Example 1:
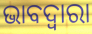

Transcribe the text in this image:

ଭାବଦ୍ଵାରା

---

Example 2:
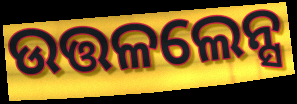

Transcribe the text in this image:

ଉତ୍ତଳଲେନ୍ସ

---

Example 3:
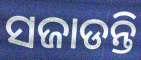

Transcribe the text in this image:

ସଜାଡନ୍ତି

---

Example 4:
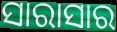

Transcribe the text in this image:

ସାରାସାର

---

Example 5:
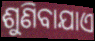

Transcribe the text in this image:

ଶୁଣିବାଯାଏ